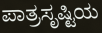
ಪಾತ್ರಸೃಷ್ಟಿಯ